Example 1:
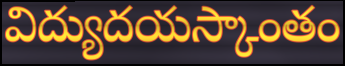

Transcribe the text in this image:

విద్యుదయస్కాంతం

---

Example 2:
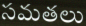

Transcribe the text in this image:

సమతలు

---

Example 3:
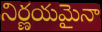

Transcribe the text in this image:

నిర్ణయమైనా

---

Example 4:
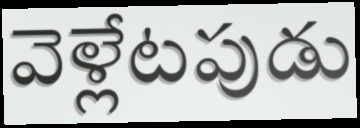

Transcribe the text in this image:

వెళ్లేటపుడు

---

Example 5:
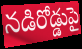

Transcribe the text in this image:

నడిరోడ్డుపై